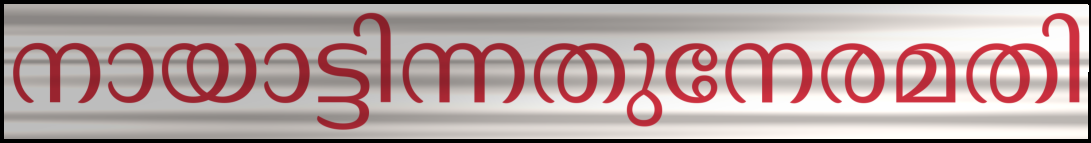
നായാട്ടിന്നതുനേരമതി